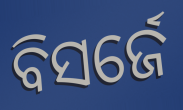
ବିସର୍ଜେ